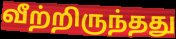
வீற்றிருந்தது